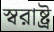
স্বরাষ্ট্র